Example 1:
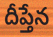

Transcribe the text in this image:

దీప్తేన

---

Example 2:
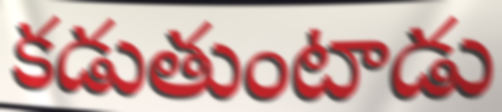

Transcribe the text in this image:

కడుతుంటాడు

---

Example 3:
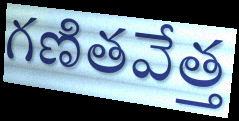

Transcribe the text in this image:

గణితవేత్త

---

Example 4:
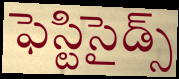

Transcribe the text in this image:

ఫెస్టిసైడ్స్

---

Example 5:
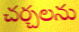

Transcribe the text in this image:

చర్చలను